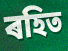
ৰহিত